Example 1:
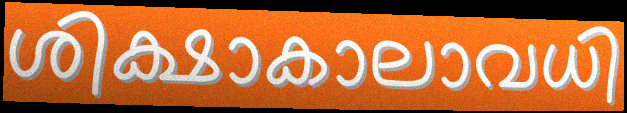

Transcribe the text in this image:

ശിക്ഷാകാലാവധി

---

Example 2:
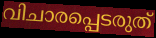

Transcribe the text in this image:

വിചാരപ്പെടരുത്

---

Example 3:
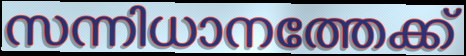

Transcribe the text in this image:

സന്നിധാനത്തേക്ക്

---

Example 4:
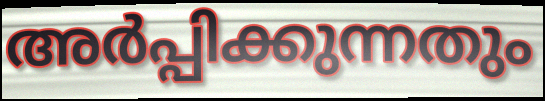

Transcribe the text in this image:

അർപ്പിക്കുന്നതും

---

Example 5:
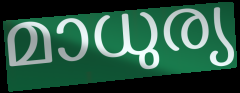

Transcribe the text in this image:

മാധുര്യ